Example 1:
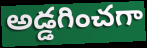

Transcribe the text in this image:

అడ్డగించగా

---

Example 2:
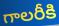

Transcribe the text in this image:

గాలరీకి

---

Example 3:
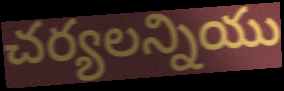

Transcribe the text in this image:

చర్యలన్నియు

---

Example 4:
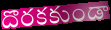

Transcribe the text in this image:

దొరకకుండా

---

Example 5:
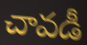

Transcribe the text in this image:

చావడీ